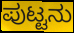
ಪುಟ್ಟನು